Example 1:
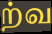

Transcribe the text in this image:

ற்வ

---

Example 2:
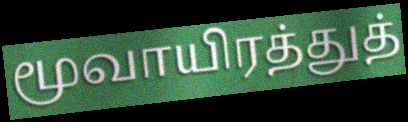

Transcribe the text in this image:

மூவாயிரத்துத்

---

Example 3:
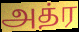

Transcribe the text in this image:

அத்ர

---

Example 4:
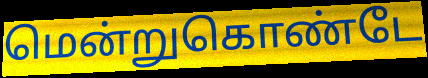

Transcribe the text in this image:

மென்றுகொண்டே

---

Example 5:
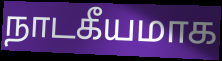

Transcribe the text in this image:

நாடகீயமாக